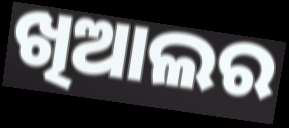
ଖିଆଲର